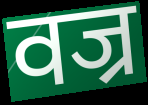
वज्र